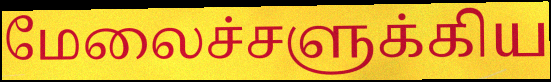
மேலைச்சளுக்கிய